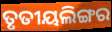
ତୃତୀୟଲିଙ୍ଗର